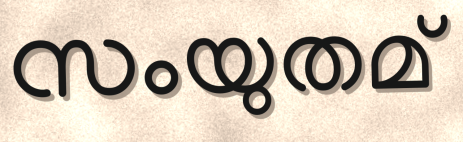
സംയുതമ്